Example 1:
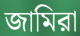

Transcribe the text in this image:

জামিরা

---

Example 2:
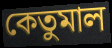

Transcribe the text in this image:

কেতুমাল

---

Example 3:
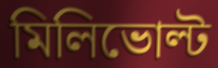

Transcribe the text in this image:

মিলিভোল্ট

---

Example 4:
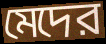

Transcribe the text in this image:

মেদের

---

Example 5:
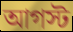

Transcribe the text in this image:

আগস্ট